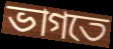
ভাগতে